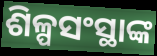
ଶିଳ୍ପସଂସ୍ଥାଙ୍କ